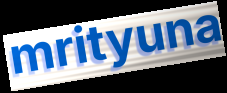
mrityuna